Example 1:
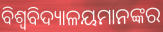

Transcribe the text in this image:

ବିଶ୍ଵବିଦ୍ୟାଳୟମାନଙ୍କର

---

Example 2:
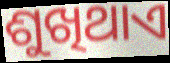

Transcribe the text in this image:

ଶୁଖିଥାଏ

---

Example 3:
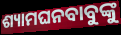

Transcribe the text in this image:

ଶ୍ୟାମଘନବାବୁଙ୍କୁ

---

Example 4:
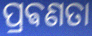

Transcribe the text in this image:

ପ୍ରଵଣତା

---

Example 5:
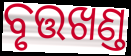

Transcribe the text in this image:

ବୃତ୍ତଖଣ୍ଡ